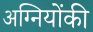
अग्नियोंकी